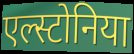
एल्स्टोनिया